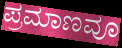
ಪ್ರಮಾಣವೂ